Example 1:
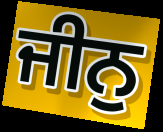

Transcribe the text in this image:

ਜੀਨੁ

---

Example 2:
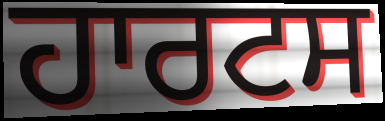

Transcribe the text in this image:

ਹਾਰਟਸ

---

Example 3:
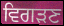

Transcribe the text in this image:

ਵਿਗੜਣ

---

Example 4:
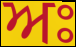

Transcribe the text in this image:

ਅਃ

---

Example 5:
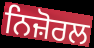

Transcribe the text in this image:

ਨਿਜ਼ੋਰਲ